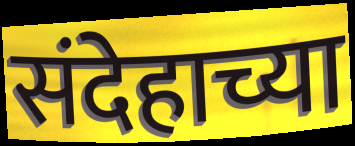
संदेहाच्या